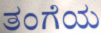
ತಂಗೆಯ